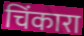
चिंकारा